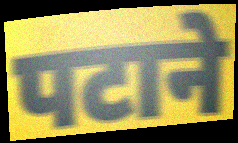
पटाने